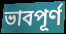
ভাবপূর্ণ